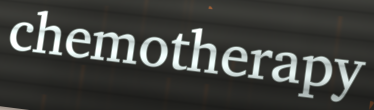
chemotherapy